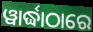
ୱାର୍ଦ୍ଧାଠାରେ